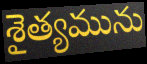
శైత్యమును